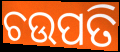
ଚଉପତି